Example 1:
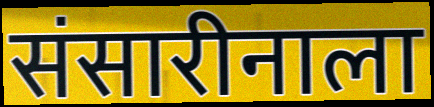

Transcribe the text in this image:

संसारीनाला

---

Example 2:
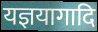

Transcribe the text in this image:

यज्ञयागादि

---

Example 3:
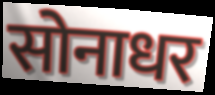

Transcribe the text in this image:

सोनाधर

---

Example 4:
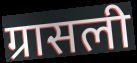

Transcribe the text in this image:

ग्रासली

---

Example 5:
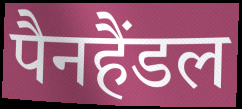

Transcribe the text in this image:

पैनहैंडल